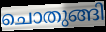
ചൊതുങ്ങി